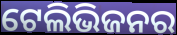
ଟେଲିଭିଜନର